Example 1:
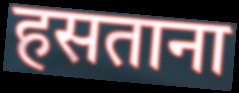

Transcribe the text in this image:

हसताना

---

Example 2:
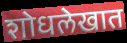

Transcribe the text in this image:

शोधलेखात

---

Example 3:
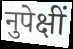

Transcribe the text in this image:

नुपेक्षीं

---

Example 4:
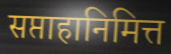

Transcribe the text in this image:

सप्ताहानिमित्त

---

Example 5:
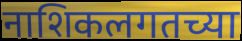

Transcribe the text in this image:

नाशिकलगतच्या